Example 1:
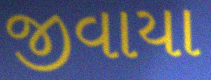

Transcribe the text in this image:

જીવાયા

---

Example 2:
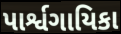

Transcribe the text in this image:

પાર્શ્વગાયિકા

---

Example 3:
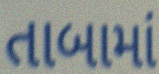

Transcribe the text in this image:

તાબામાં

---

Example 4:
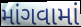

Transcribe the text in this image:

માંગવામાં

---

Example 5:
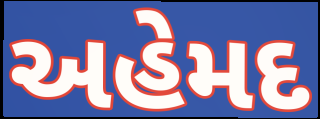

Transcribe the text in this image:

અહેમદ